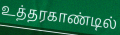
உத்தரகாண்டில்